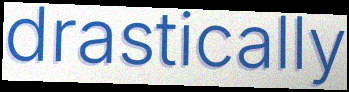
drastically